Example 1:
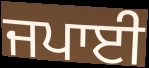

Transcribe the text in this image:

ਜਪਾਈ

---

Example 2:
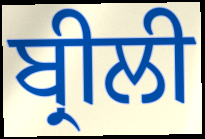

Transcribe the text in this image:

ਬ੍ਰੀਲੀ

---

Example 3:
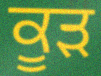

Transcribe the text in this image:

ਕੂੜ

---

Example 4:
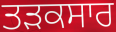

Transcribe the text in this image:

ਤੜਕਸਾਰ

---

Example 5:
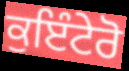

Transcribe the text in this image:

ਕੁਇੰਟੇਰੋ